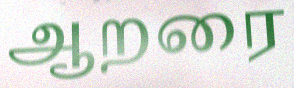
ஆறரை